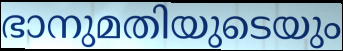
ഭാനുമതിയുടെയും